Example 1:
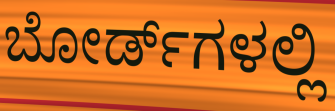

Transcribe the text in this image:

ಬೋರ್ಡ್‌ಗಳಲ್ಲಿ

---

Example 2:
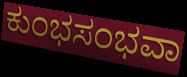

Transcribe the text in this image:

ಕುಂಭಸಂಭವಾ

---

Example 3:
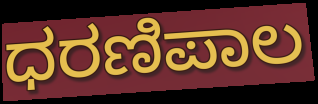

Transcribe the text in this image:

ಧರಣಿಪಾಲ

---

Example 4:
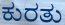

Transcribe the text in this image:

ಕುರತು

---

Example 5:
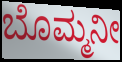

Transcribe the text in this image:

ಬೊಮ್ಮನೀ